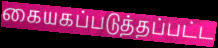
கையகப்படுத்தப்பட்ட